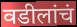
वडीलांचं